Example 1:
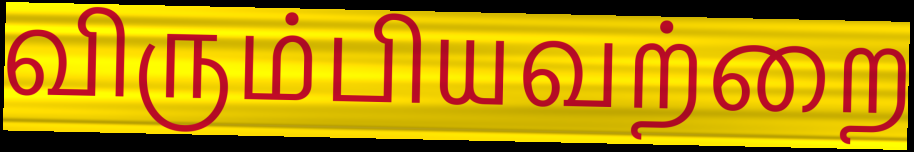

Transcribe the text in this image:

விரும்பியவற்றை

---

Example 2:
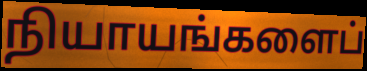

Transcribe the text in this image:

நியாயங்களைப்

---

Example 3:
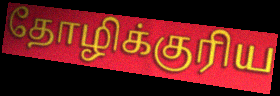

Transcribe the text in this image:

தோழிக்குரிய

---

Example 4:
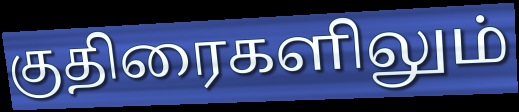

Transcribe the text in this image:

குதிரைகளிலும்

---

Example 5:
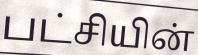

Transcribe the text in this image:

பட்சியின்